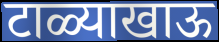
टाळ्याखाऊ